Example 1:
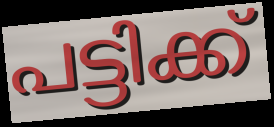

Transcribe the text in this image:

പട്ടിക്ക്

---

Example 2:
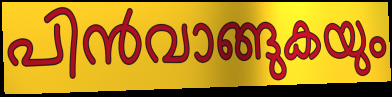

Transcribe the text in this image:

പിൻവാങ്ങുകയും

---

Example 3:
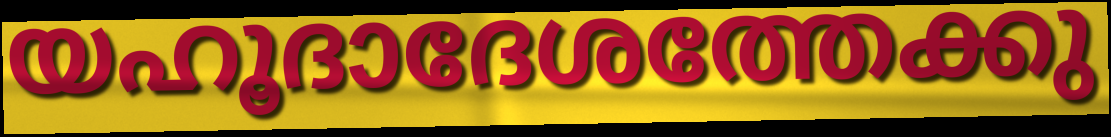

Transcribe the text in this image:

യഹൂദാദേശത്തേക്കു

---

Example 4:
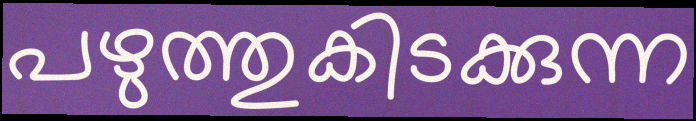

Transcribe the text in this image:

പഴുത്തുകിടക്കുന്ന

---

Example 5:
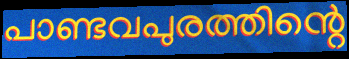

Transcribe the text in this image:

പാണ്ടവപുരത്തിന്റെ